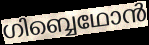
ഗിബ്ബെഥോൻ